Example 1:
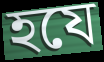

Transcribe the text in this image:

হযে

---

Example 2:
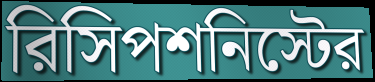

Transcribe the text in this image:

রিসিপশনিস্টের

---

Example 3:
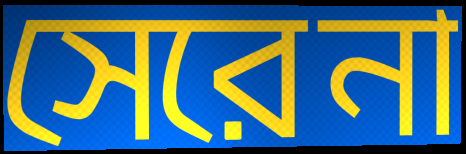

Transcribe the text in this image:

সেরেনা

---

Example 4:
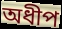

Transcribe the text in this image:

অধীপ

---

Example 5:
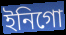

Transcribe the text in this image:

ইনিগো